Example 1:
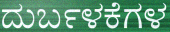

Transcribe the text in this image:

ದುರ್ಬಳಕೆಗಳ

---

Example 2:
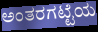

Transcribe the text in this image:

ಅಂತರಗಟ್ಟೆಯ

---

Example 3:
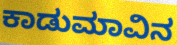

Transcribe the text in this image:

ಕಾಡುಮಾವಿನ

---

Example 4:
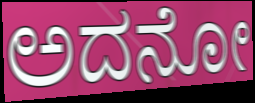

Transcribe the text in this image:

ಅದನೋ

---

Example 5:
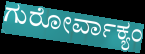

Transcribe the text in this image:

ಗುರೋರ್ವಾಕ್ಯಂ